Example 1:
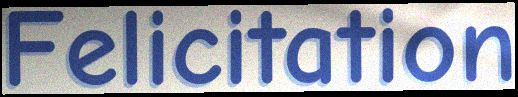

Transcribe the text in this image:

Felicitation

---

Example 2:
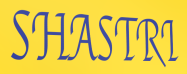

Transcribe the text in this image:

SHASTRI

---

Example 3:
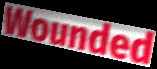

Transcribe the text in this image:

Wounded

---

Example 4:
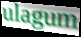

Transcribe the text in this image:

ulagum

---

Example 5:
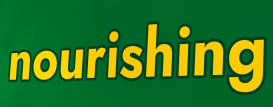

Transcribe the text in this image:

nourishing